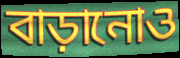
বাড়ানোও